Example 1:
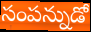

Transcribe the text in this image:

సంపన్నుడో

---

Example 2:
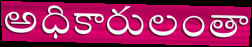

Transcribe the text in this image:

అధికారులంతా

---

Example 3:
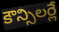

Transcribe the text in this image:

కౌన్సిలర్లే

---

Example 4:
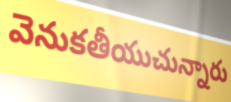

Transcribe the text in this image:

వెనుకతీయుచున్నారు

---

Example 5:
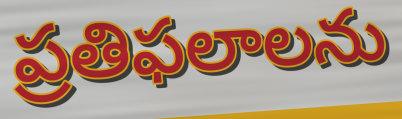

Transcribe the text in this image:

ప్రతిఫలాలను